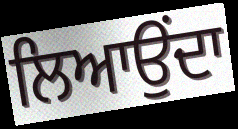
ਲਿਆਉਂਦਾ